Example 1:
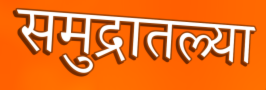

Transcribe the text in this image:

समुद्रातल्या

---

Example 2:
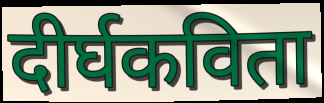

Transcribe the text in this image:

दीर्घकविता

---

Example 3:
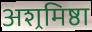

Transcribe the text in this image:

अश्रमिष्ठा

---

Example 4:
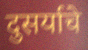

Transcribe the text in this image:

दुसर्याचे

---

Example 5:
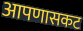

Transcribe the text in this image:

आपणासकट